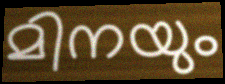
മിനയും